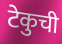
टेकुची